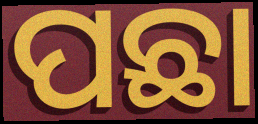
ପଛା